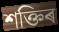
শক্তিৰ